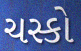
ચસ્કો